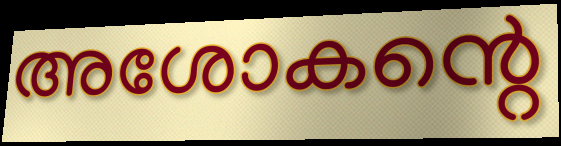
അശോകന്റെ